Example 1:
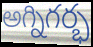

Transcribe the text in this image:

అగ్నిగర్భ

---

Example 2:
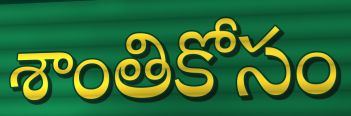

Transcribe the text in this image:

శాంతికోసం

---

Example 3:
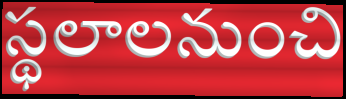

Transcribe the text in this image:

స్థలాలనుంచి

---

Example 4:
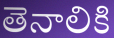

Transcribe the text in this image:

తెనాలికి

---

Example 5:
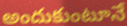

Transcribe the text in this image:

అందుకుంటూనే